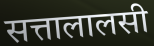
सत्तालालसी